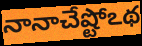
నానాచేష్టోఽథ